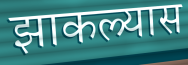
झाकल्यास